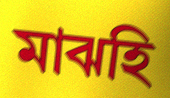
মাঝহি